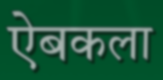
ऐबकला